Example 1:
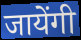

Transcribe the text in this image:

जायेंगी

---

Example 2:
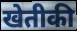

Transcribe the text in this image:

खेतीकी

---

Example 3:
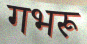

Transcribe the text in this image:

गभरू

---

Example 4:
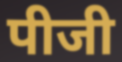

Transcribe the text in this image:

पीजी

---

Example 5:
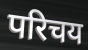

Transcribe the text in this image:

परिचय